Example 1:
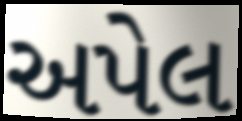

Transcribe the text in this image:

અપેલ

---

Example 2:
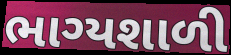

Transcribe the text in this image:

ભાગ્યશાળી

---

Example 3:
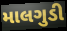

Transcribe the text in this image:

માલગુડી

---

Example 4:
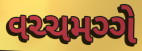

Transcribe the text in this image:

વચ્ચમગ્ગે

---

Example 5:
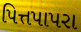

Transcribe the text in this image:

પિત્તપાપરા